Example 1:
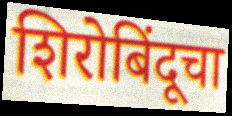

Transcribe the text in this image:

शिरोबिंदूचा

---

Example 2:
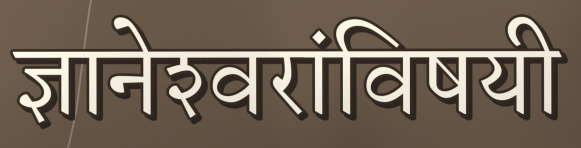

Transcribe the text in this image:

ज्ञानेश्वरांविषयी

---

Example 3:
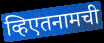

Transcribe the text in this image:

व्हिएतनामची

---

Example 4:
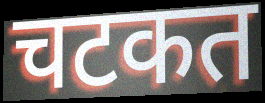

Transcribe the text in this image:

चटकत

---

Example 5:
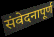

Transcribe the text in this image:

संवेदनापूर्ण